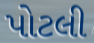
પોટલી